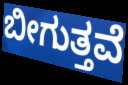
ಬೀಗುತ್ತವೆ